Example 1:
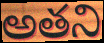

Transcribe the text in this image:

అతని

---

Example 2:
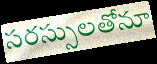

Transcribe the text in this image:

సరస్సులతోనూ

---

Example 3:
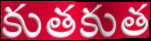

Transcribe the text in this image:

కుతకుత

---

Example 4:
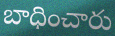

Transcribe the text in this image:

బాధించారు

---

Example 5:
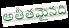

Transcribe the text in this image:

అతీతమైనది